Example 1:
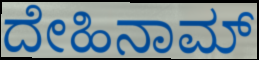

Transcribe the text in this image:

ದೇಹಿನಾಮ್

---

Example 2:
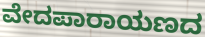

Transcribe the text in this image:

ವೇದಪಾರಾಯಣದ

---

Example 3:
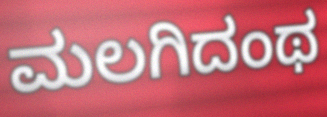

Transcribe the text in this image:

ಮಲಗಿದಂಥ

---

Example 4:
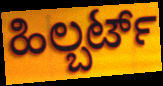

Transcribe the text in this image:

ಹಿಲ್ಬರ್ಟ್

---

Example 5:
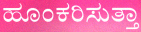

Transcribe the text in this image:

ಹೂಂಕರಿಸುತ್ತಾ